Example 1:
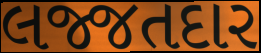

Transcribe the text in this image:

લજ્જતદાર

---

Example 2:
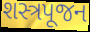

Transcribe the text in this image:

શસ્ત્રપૂજન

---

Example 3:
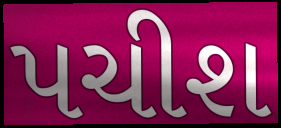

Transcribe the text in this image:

પચીશ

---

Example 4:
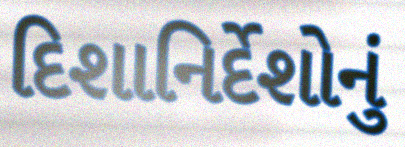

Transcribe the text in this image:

દિશાનિર્દેશોનું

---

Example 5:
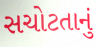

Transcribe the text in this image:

સચોટતાનું